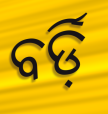
ବର୍ଡ଼ି